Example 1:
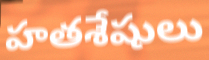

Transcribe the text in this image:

హతశేషులు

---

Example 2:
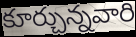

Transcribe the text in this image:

కూర్చున్నవారి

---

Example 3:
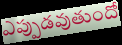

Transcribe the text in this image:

ఎప్పుడవుతుందో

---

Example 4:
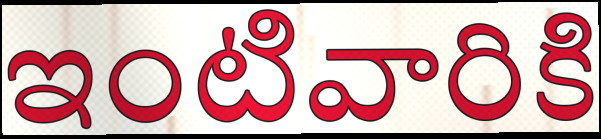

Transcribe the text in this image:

ఇంటివారికి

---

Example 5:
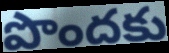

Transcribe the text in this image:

పొందకు